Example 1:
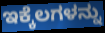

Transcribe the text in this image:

ಇಕ್ಕೆಲಗಳನ್ನು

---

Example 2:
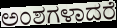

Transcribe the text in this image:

ಅಂಶಗಳಾದರೆ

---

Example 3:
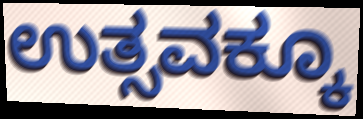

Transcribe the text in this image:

ಉತ್ಸವಕ್ಕೂ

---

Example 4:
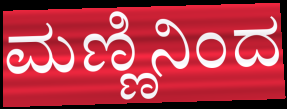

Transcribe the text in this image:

ಮಣ್ಣಿನಿಂದ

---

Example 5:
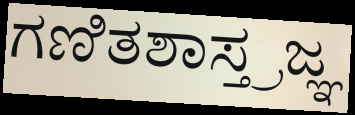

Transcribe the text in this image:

ಗಣಿತಶಾಸ್ತ್ರಜ್ಞ